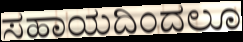
ಸಹಾಯದಿಂದಲೂ